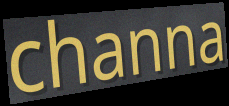
channa